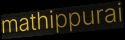
mathippurai